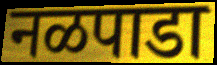
नळपाडा